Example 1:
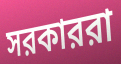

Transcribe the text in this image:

সরকাররা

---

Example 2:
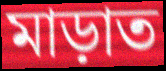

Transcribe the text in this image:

মাড়াত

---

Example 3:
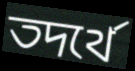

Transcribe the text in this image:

তদর্থে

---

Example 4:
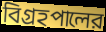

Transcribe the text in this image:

বিগ্রহপালের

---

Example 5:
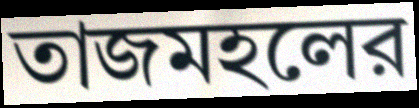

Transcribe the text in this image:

তাজমহলের